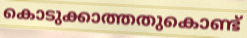
കൊടുക്കാത്തതുകൊണ്ട്